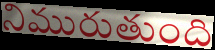
నిమురుతుంది